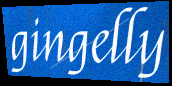
gingelly